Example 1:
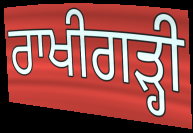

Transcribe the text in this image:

ਰਾਖੀਗੜ੍ਹੀ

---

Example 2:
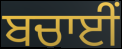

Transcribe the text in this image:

ਬਚਾਈਂ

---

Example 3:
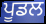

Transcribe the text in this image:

ਪੂਡਲ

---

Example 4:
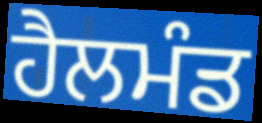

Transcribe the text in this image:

ਹੈਲਮੰਡ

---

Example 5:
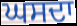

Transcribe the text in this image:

ਘਸਦਾ